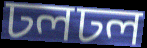
ঢলঢল